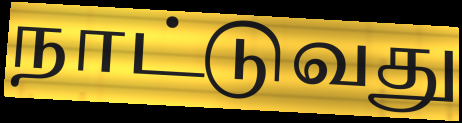
நாட்டுவது